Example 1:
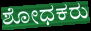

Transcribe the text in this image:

ಶೋಧಕರು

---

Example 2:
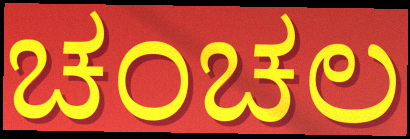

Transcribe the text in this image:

ಚಂಚಲ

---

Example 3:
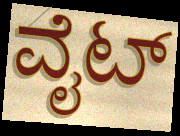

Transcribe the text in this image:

ವೈಟ್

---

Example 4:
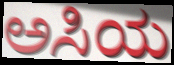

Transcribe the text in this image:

ಅಸಿಯ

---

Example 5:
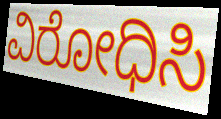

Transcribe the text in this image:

ವಿರೋಧಿಸಿ